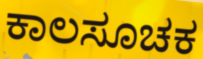
ಕಾಲಸೂಚಕ